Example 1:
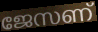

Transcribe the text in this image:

ജേസണ്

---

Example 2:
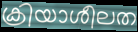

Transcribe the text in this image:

ക്രിയാശീലത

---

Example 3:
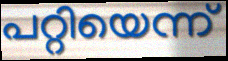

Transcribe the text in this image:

പറ്റിയെന്ന്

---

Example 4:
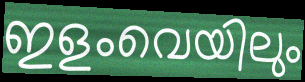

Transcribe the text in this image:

ഇളംവെയിലും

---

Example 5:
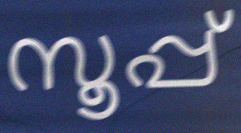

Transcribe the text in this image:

സൂപ്പ്